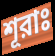
শূরাঃ